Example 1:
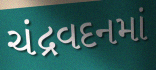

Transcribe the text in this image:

ચંદ્રવદનમાં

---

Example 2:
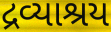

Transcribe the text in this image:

દ્રવ્યાશ્રય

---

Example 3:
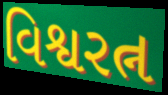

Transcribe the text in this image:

વિશ્વરત્ન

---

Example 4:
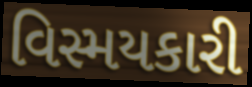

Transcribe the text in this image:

વિસ્મયકારી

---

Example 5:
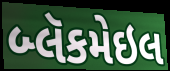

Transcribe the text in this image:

બ્લૅકમેઇલ